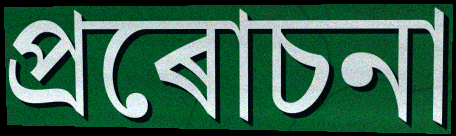
প্ৰৰোচনা